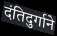
दंतिदुर्गाने